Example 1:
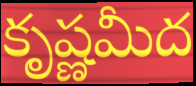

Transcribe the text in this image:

కృష్ణమీద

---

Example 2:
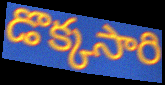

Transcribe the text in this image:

డొక్కసారి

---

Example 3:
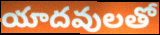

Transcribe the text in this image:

యాదవులతో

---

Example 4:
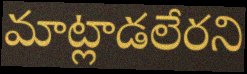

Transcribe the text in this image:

మాట్లాడలేరని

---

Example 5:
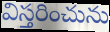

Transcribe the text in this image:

విస్తరించును